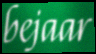
bejaar